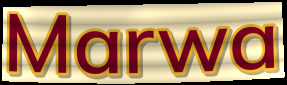
Marwa